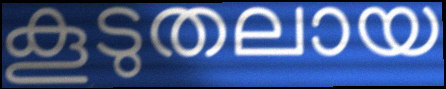
കൂടുതലായ